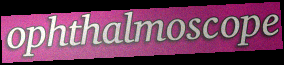
ophthalmoscope